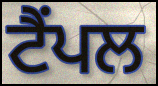
ਟੈਂਪਲ